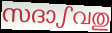
സദാഽവതു